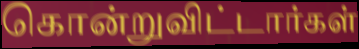
கொன்றுவிட்டார்கள்